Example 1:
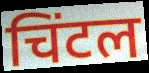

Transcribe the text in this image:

चिंटल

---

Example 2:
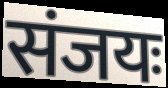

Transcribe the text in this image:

संजयः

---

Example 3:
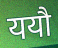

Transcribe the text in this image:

ययौ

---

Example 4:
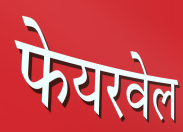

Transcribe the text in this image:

फेयरवेल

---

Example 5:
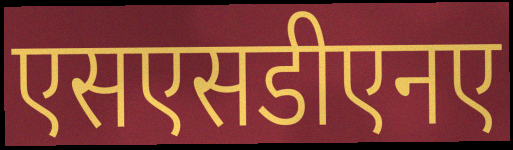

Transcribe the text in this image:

एसएसडीएनए